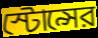
স্টোন্সের